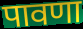
पावणा